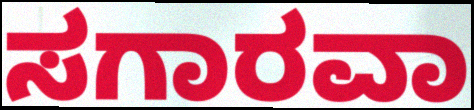
ಸಗಾರವಾ